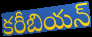
కరీబియన్